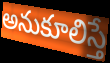
అనుకూలిస్తే